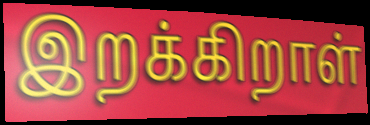
இறக்கிறாள்